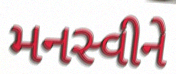
મનસ્વીને